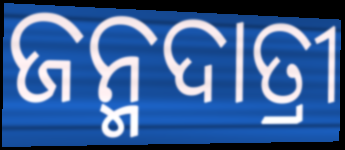
ଜନ୍ମଦାତ୍ରୀ